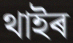
থাইৰ